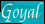
Goyal